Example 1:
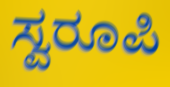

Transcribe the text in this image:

ಸ್ವರೂಪಿ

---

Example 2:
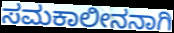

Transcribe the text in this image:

ಸಮಕಾಲೀನನಾಗಿ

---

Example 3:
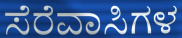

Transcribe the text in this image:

ಸೆರೆವಾಸಿಗಳ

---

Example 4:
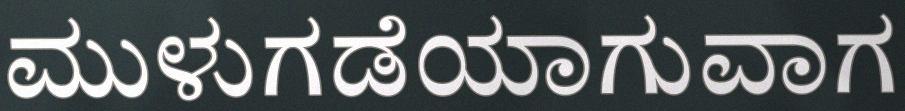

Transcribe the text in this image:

ಮುಳುಗಡೆಯಾಗುವಾಗ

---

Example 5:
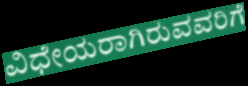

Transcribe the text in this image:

ವಿಧೇಯರಾಗಿರುವವರಿಗೆ